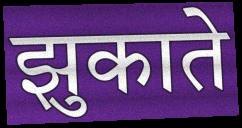
झुकाते